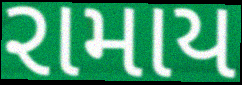
રામાય